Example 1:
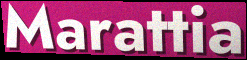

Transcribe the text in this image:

Marattia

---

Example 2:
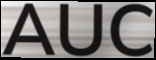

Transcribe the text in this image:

AUC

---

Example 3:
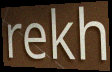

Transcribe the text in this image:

rekh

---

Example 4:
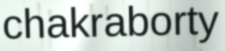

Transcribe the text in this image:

chakraborty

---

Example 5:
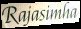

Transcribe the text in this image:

Rajasimha